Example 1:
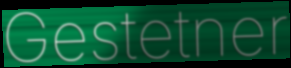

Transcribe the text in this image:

Gestetner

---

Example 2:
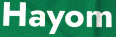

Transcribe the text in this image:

Hayom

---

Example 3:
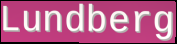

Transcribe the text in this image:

Lundberg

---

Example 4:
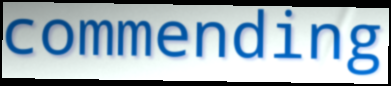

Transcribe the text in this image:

commending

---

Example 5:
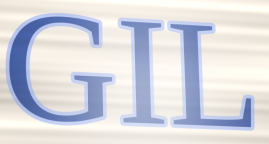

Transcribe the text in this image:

GIL